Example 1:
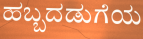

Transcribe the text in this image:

ಹಬ್ಬದಡುಗೆಯ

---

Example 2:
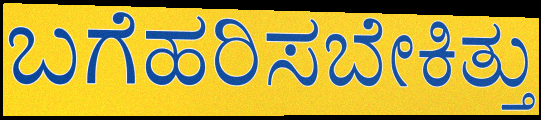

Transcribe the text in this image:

ಬಗೆಹರಿಸಬೇಕಿತ್ತು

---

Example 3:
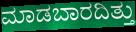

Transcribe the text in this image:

ಮಾಡಬಾರದಿತ್ತು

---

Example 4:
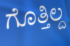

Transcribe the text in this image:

ಗೊತ್ತಿಲ್ದ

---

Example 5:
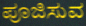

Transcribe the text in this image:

ಪೂಜಿಸುವ